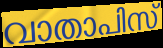
വാതാപിസ്